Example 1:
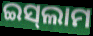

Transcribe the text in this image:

ଇସ୍‌ଲାମ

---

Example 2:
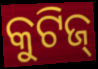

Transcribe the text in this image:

କୁଟିଜ୍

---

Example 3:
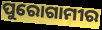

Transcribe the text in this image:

ପୁରୋଗାମୀର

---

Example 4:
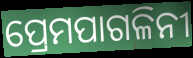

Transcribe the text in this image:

ପ୍ରେମପାଗଳିନୀ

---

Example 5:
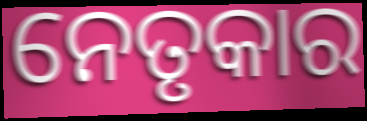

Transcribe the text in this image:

ନେତୃକାର